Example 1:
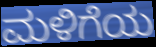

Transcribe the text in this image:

ಮಳಿಗೆಯ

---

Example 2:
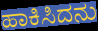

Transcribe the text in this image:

ಹಾಕಿಸಿದನು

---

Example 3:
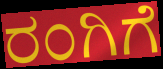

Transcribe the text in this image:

ರಂಗಿಗೆ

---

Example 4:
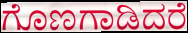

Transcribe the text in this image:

ಗೊಣಗಾಡಿದರೆ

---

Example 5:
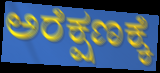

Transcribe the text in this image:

ಅರೆಕ್ಷಣಕ್ಕೆ